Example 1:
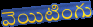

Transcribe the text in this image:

వెయిటింగు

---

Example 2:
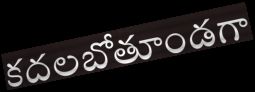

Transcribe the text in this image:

కదలబోతూండగా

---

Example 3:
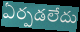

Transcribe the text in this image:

ఏర్పడలేదు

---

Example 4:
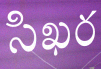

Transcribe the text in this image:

సిఖర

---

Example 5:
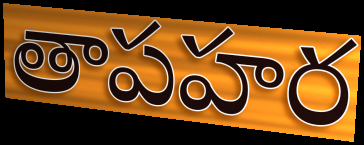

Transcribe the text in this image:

తాపహర